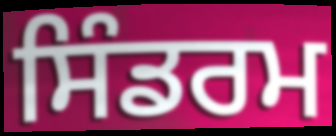
ਸਿੰਡਰਮ